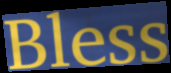
Bless